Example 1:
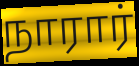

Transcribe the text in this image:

நாரார்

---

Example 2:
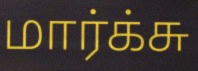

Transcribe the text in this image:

மார்க்சு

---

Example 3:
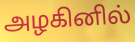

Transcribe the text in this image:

அழகினில்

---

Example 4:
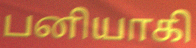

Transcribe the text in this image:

பனியாகி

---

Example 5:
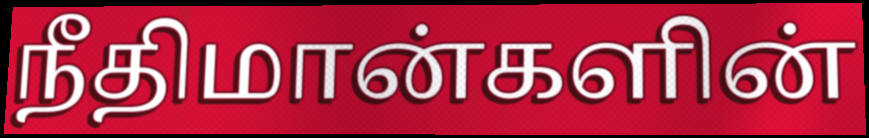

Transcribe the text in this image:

நீதிமான்களின்